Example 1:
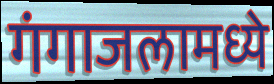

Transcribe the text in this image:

गंगाजलामध्ये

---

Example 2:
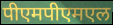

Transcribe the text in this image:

पीएमपीएमएल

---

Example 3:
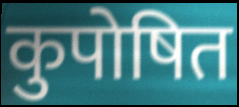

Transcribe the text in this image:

कुपोषित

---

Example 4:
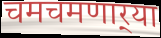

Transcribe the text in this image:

चमचमणार्या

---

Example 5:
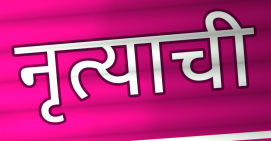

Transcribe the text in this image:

नृत्याची